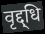
वृद्द्धि